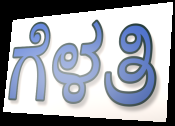
ಗೆಳತಿ